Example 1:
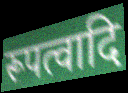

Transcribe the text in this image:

रूपत्वादि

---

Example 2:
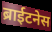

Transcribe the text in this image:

ब्राईटनेस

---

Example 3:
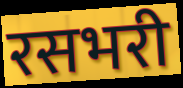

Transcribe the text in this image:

रसभरी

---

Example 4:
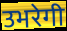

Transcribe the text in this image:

उभरेगी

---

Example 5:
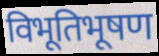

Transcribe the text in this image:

विभूतिभूषण